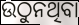
ଉଠୁନଥିବା